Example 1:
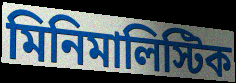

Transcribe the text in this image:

মিনিমালিস্টিক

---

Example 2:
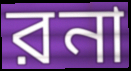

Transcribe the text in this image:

রনা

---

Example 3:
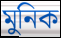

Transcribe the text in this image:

মুনিক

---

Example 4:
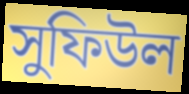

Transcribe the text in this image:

সুফিউল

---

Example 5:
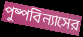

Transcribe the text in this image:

পুষ্পবিন্যাসের